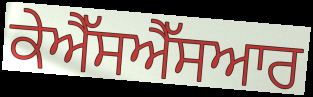
ਕੇਐੱਸਐੱਸਆਰ